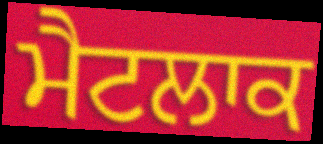
ਮੈਟਲਾਕ